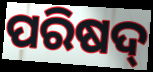
ପରିଷଦ୍